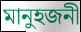
মানুহজনী